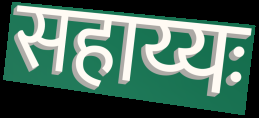
सहाय्यः